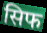
सिफ